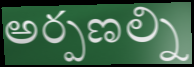
అర్పణల్ని